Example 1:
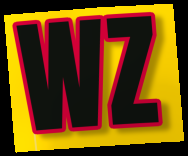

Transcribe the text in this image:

WZ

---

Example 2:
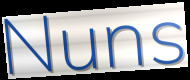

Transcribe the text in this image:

Nuns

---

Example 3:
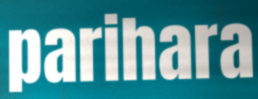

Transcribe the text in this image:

parihara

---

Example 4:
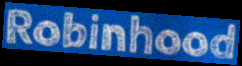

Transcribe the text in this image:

Robinhood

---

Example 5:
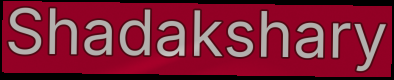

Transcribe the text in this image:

Shadakshary